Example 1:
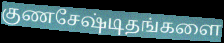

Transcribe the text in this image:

குணசேஷ்டிதங்களை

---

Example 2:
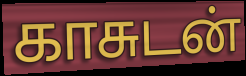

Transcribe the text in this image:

காசுடன்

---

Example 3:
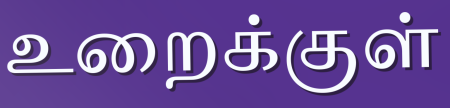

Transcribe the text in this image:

உறைக்குள்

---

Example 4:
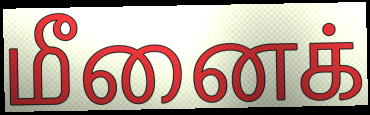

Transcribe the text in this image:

மீனைக்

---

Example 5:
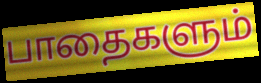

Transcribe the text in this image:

பாதைகளும்